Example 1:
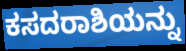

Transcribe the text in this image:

ಕಸದರಾಶಿಯನ್ನು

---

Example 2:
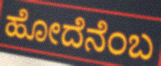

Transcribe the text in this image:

ಹೋದೆನೆಂಬ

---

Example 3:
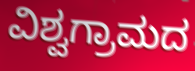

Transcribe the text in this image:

ವಿಶ್ವಗ್ರಾಮದ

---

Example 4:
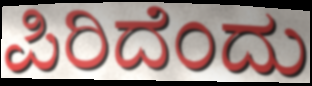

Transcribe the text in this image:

ಪಿರಿದೆಂದು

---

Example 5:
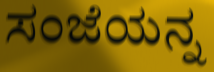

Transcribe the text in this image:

ಸಂಜೆಯನ್ನ